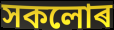
সকলোৰ